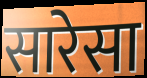
सारेसा